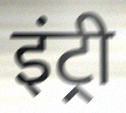
इंट्री